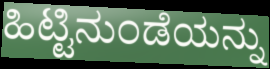
ಹಿಟ್ಟಿನುಂಡೆಯನ್ನು